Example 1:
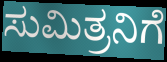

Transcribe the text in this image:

ಸುಮಿತ್ರನಿಗೆ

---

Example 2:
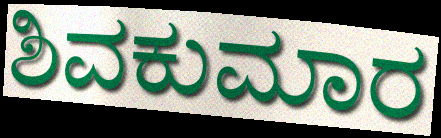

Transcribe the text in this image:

ಶಿವಕುಮಾರ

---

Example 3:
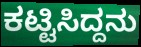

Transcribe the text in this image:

ಕಟ್ಟಿಸಿದ್ದನು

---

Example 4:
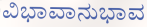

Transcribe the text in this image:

ವಿಭಾವಾನುಭಾವ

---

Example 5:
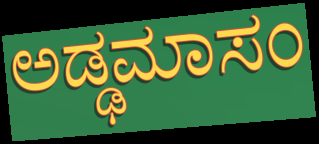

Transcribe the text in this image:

ಅಡ್ಢಮಾಸಂ